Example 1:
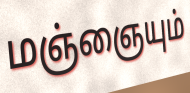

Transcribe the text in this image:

மஞ்ஞையும்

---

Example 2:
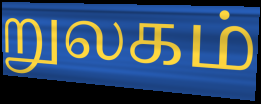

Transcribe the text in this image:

றுலகம்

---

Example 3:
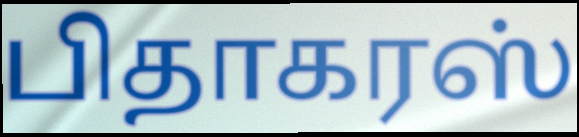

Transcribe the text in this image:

பிதாகரஸ்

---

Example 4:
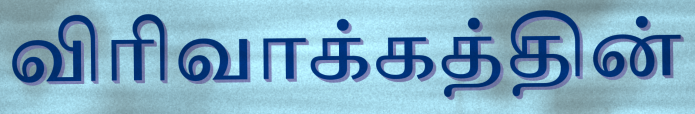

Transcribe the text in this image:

விரிவாக்கத்தின்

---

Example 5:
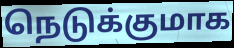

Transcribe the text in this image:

நெடுக்குமாக